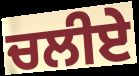
ਚਲੀਏ